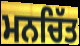
ਮਨਚਿੱਤ